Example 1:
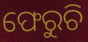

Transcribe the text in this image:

ଫେରୁଚି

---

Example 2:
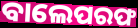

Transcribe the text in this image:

ବାଲେପରଫ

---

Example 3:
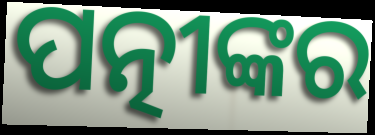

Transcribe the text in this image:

ପତ୍ନୀଙ୍କର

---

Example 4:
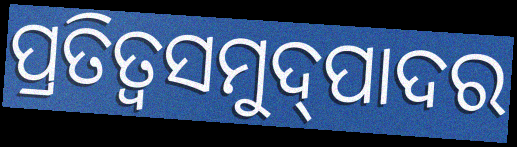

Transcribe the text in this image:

ପ୍ରତିତ୍ଵସମୁଦ୍‌ପାଦର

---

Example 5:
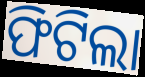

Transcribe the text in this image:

ଫିଟିଲା